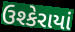
ઉશ્કેરાયાં